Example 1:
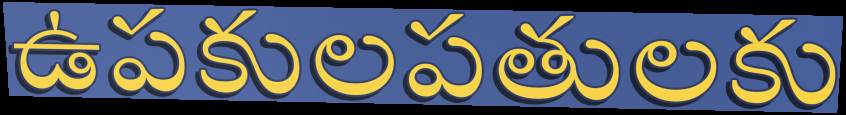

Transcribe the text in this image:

ఉపకులపతులకు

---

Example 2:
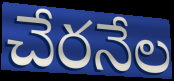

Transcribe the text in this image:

చేరనేల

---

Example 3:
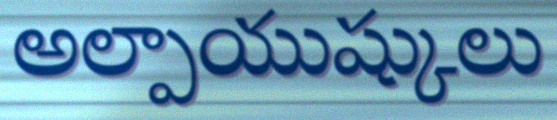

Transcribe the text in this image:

అల్పాయుష్కులు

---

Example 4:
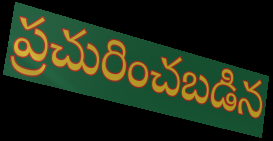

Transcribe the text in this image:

ప్రచురించబడిన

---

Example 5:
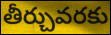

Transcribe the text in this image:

తీర్చువరకు